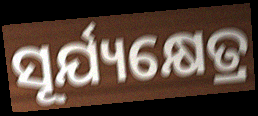
ସୂର୍ଯ୍ୟକ୍ଷେତ୍ର